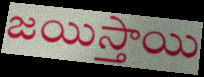
జయిస్తాయి